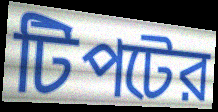
টিপটের